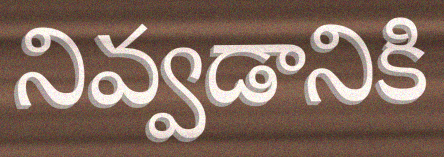
నివ్వడానికి